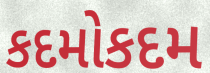
કદમોકદમ